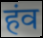
हंव